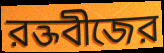
রক্তবীজের